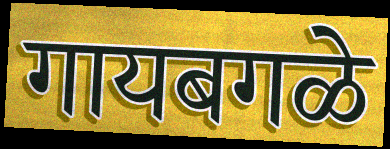
गायबगळे